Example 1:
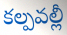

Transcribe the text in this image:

కల్పవల్లీ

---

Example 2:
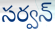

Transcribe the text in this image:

సర్వన్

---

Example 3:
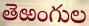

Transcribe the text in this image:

తెఱంగుల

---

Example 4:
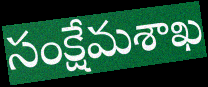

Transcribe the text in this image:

సంక్షేమశాఖ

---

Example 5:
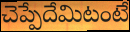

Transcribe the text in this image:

చెప్పేదేమిటంటే